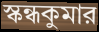
স্কন্ধকুমার